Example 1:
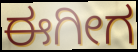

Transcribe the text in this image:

ಈಗೀಗ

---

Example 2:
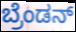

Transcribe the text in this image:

ಬ್ರೆಂಡನ್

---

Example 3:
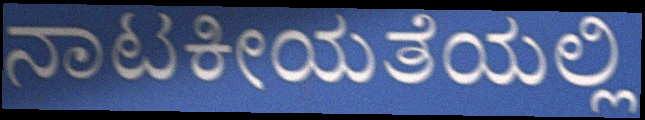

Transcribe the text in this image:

ನಾಟಕೀಯತೆಯಲ್ಲಿ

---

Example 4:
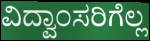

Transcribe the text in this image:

ವಿದ್ವಾಂಸರಿಗೆಲ್ಲ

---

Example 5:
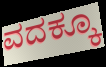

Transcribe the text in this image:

ವದಕ್ಕೂ